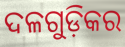
ଦଳଗୁଡ଼ିକର